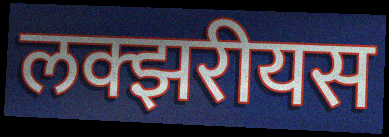
लक्झरीयस